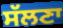
ਸੱਲਣਾ